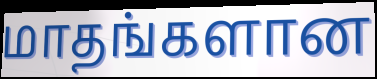
மாதங்களான